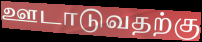
ஊடாடுவதற்கு